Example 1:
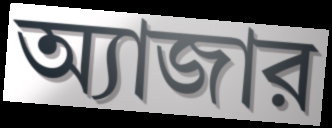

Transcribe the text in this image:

অ্যাজার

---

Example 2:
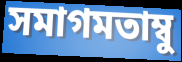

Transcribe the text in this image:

সমাগমতাম্বু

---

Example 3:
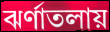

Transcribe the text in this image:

ঝর্ণাতলায়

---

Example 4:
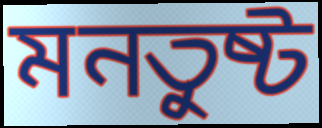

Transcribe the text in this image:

মনতুষ্ট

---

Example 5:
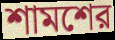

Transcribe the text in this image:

শামশের